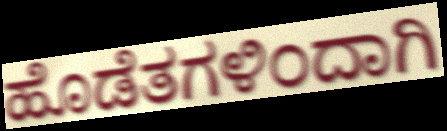
ಹೊಡೆತಗಳಿಂದಾಗಿ